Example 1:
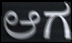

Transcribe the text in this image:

ಆಗ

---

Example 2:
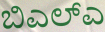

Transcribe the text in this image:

ಬಿಎಲ್ಎ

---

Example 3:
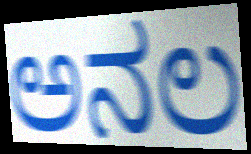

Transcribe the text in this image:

ಅನಲ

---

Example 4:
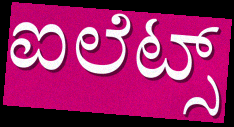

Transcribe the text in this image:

ಐಲೆಟ್ಸ್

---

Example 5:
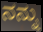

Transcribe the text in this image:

ನನ್ನು